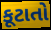
કૂટાતો